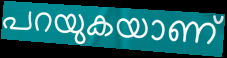
പറയുകയാണ്